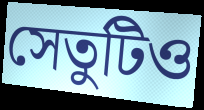
সেতুটিও